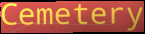
Cemetery